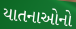
યાતનાઓનો